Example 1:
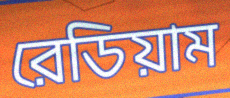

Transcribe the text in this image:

রেডিয়াম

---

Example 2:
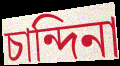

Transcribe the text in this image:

চান্দিনা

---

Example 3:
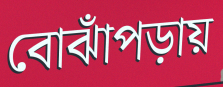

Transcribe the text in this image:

বোঝাঁপড়ায়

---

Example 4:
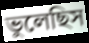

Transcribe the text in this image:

ভুলেছিস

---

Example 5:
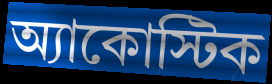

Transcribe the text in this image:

অ্যাকোস্টিক